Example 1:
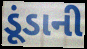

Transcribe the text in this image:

ડૂંડાની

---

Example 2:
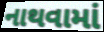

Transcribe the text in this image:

નાથવામાં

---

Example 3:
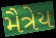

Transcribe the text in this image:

મૈત્રેય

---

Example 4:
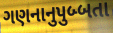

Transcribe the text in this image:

ગણનાનુપુબ્બતા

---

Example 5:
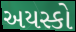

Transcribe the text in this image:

અયસ્કો